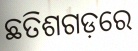
ଛତିଶଗଡ଼ରେ